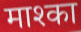
माश्का